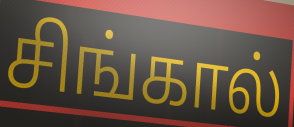
சிங்கால்